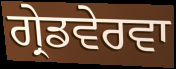
ਗ੍ਰੇਡਵੇਰਵਾ